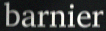
barnier